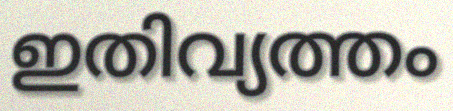
ഇതിവ്യത്തം